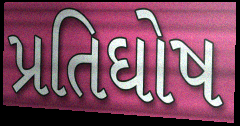
પ્રતિઘોષ